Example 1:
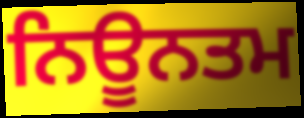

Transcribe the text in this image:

ਨਿਊਨਤਮ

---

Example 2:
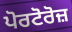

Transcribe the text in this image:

ਪੋਰਟੋਰੋਜ਼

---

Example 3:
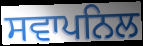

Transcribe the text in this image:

ਸਵਾਪਨਿਲ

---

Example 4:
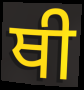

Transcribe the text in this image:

ਥੀ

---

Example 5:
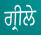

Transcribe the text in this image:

ਗ੍ਰੀਲੇ